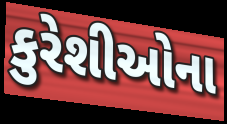
કુરેશીઓના